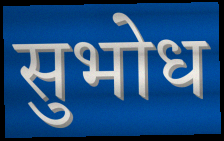
सुभोध